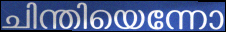
ചിന്തിയെന്നോ